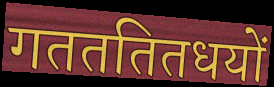
गतततितधयों